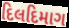
દિલદિમાગ